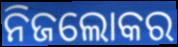
ନିଜଲୋକର